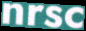
nrsc